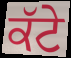
ਕੱਟੇ